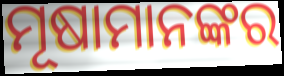
ମୂଷାମାନଙ୍କର